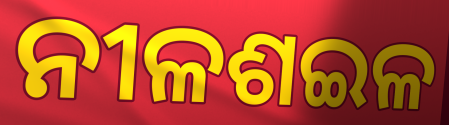
ନୀଳଶଇଳ